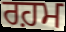
ਰਹ਼ਮ